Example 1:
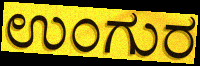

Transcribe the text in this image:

ಉಂಗುರ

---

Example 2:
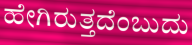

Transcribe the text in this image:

ಹೇಗಿರುತ್ತದೆಂಬುದು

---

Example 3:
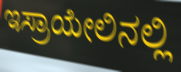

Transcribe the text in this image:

ಇಸ್ರಾಯೇಲಿನಲ್ಲಿ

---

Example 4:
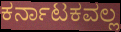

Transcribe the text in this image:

ಕರ್ನಾಟಕವಲ್ಲ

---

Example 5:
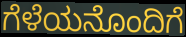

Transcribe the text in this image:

ಗೆಳೆಯನೊಂದಿಗೆ